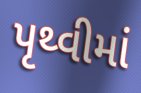
પૃથ્વીમાં